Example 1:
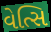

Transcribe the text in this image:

વેત્સિ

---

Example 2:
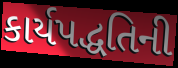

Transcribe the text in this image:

કાર્યપદ્ધતિની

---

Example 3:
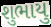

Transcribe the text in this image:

શુભાયુ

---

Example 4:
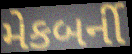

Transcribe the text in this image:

મેકબર્ની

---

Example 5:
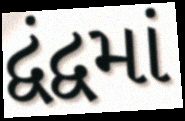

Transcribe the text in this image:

દ્વંદ્વમાં